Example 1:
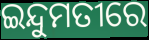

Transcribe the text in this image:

ଇନ୍ଦୁମତୀରେ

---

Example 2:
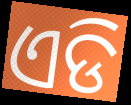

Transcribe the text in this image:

ଏଡି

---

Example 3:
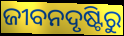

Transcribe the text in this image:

ଜୀବନଦୃଷ୍ଟିରୁ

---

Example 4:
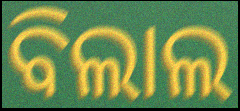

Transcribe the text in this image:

ବିଲାଲ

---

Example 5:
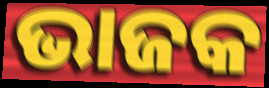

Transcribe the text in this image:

ଭାଜକ